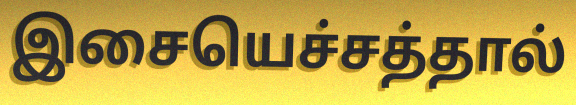
இசையெச்சத்தால்